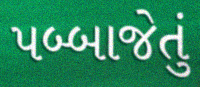
પબ્બાજેતું